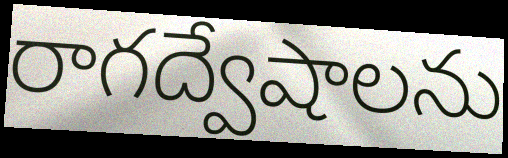
రాగద్వేషాలను